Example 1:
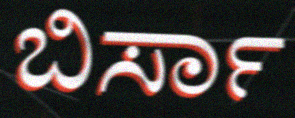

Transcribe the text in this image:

ಬಿರ್ಸಾ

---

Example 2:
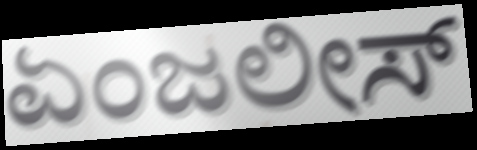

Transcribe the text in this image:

ಏಂಜಲೀಸ್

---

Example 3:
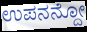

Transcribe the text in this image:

ಉಪನನ್ದೋ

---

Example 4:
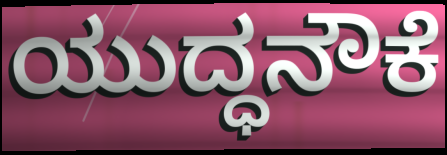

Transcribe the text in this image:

ಯುದ್ಧನೌಕೆ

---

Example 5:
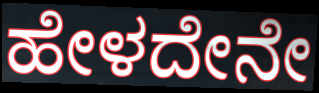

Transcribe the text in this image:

ಹೇಳದೇನೇ